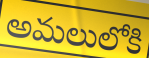
అమలులోకి